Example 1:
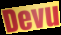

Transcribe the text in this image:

Devu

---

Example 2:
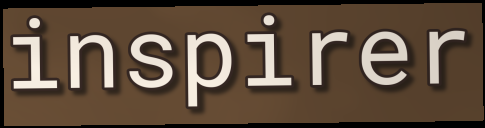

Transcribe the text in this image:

inspirer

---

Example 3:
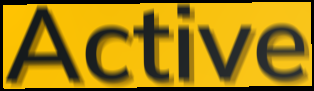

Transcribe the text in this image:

Active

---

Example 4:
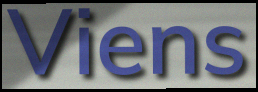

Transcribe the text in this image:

Viens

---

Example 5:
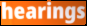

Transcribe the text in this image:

hearings